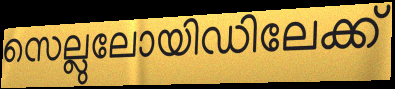
സെല്ലുലോയിഡിലേക്ക്